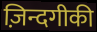
ज़िन्दगीकी